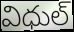
విధుల్